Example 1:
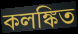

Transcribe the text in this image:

কলঙ্কিত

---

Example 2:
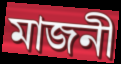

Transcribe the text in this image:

মাজনী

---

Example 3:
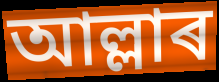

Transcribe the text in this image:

আল্লাৰ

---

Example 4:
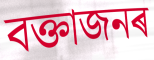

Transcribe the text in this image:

বক্তাজনৰ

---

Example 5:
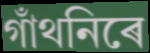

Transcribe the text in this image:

গাঁথনিৰে